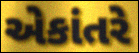
એકાંતરે